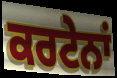
ਕਰਟੇਨਾਂ